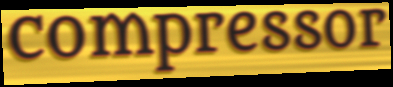
compressor